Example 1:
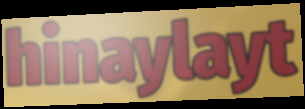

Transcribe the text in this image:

hinaylayt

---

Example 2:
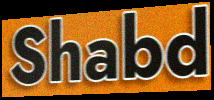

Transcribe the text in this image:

Shabd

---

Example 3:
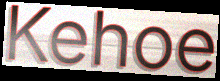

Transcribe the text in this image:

Kehoe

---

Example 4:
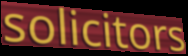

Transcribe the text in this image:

solicitors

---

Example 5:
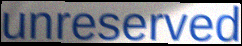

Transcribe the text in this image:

unreserved